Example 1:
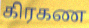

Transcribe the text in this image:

கிரகண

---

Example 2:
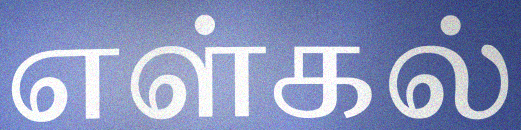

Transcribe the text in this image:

எள்கல்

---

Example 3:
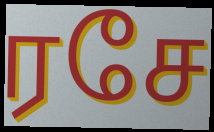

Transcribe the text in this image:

ரசே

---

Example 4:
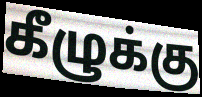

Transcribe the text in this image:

கீழுக்கு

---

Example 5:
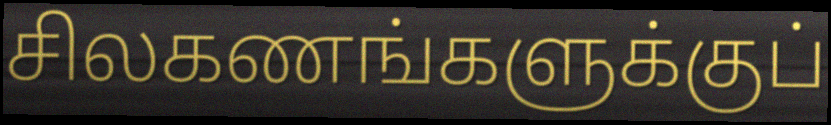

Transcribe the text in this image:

சிலகணங்களுக்குப்